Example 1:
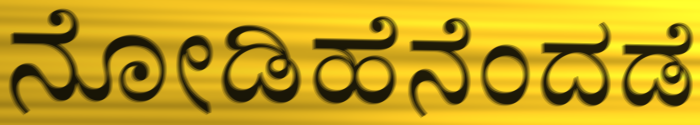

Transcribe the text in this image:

ನೋಡಿಹೆನೆಂದಡೆ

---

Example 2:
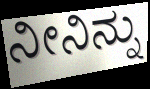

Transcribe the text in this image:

ನೀನಿನ್ನು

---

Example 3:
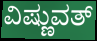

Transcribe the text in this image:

ವಿಷ್ಣುವತ್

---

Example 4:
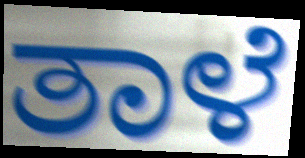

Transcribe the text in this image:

ತಾಳೆ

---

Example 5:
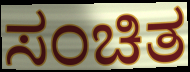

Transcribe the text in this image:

ಸಂಚಿತ